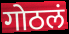
गोठलं